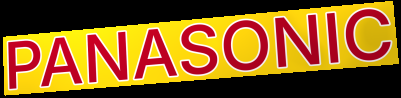
PANASONIC